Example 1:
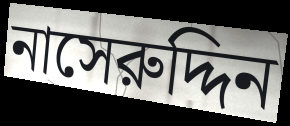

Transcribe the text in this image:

নাসেরুদ্দিন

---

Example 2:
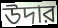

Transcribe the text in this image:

উদার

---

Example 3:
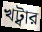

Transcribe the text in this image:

খট্বার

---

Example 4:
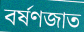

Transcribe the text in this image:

বর্ষণজাত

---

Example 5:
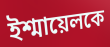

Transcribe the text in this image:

ইশ্মায়েলকে